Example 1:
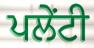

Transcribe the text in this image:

ਪਲੇਂਟੀ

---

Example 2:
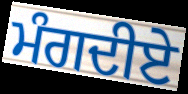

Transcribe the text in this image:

ਮੰਗਦੀਏ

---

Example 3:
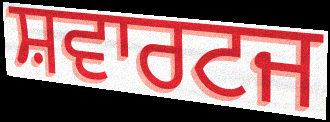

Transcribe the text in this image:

ਸ਼ਵਾਰਟਜ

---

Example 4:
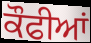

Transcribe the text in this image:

ਕੌਫੀਆਂ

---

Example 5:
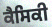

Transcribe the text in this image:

ਕੈਸਿਕੀ